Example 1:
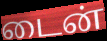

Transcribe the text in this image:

டைன்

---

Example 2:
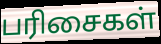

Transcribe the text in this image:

பரிசைகள்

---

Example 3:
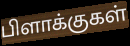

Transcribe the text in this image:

பிளாக்குகள்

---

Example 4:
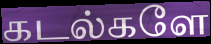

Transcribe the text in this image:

கடல்களே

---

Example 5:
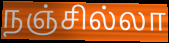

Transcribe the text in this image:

நஞ்சில்லா